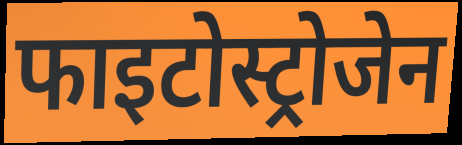
फाइटोस्ट्रोजेन